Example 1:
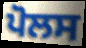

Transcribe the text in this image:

ਪੋਲਸ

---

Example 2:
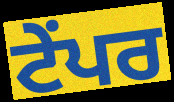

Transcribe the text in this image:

ਟੇਂਪਰ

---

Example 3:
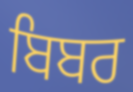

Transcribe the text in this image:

ਬਿਬਰ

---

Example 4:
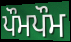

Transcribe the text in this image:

ਪੌਮਪੌਮ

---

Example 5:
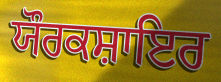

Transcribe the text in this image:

ਯੌਰਕਸ਼ਾਇਰ